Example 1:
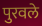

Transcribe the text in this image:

पुरवले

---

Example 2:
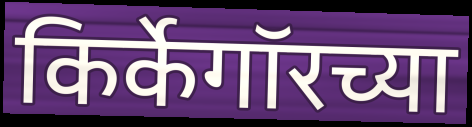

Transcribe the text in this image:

किर्केगॉरच्या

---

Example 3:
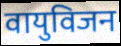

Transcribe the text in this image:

वायुविजन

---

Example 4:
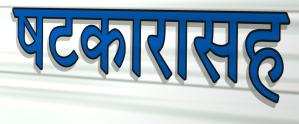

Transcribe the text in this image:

षटकारासह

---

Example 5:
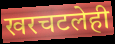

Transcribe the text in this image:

खरचटलेही